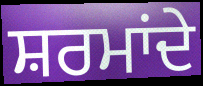
ਸ਼ਰਮਾਂਦੇ